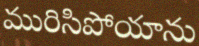
మురిసిపోయాను